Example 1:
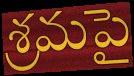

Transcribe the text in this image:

శ్రమపై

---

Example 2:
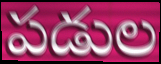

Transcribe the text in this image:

పడుల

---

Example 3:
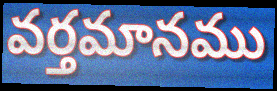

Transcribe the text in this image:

వర్తమానము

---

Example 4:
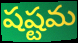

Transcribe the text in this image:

షష్టమ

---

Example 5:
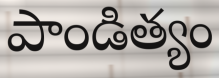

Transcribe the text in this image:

పాండిత్యం